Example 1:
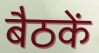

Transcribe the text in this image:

बैठकें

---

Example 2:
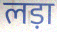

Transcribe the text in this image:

लड़ा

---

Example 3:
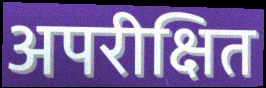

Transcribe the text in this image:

अपरीक्षित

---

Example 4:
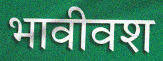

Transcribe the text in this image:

भावीवश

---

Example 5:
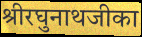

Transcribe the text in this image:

श्रीरघुनाथजीका